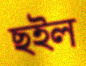
ছইল